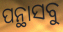
ପନ୍ଥାସବୁ